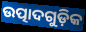
ଉତ୍ପାଦଗୁଡ଼ିକ